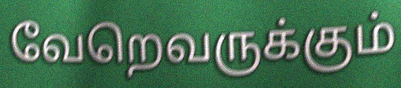
வேறெவருக்கும்